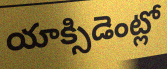
యాక్సిడెంట్లో